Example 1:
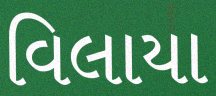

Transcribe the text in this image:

વિલાયા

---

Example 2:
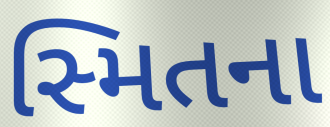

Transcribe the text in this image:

સ્મિતના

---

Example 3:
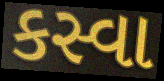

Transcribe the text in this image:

કસ્વા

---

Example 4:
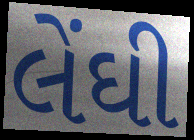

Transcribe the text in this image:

લેંઘી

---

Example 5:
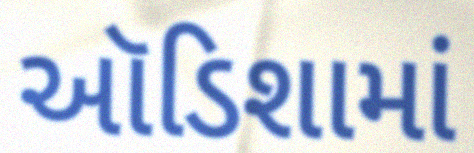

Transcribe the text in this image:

ઑડિશામાં